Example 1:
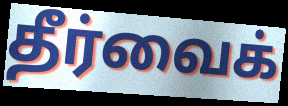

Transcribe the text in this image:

தீர்வைக்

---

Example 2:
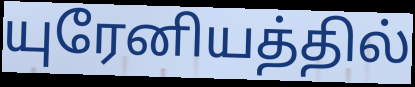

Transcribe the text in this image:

யுரேனியத்தில்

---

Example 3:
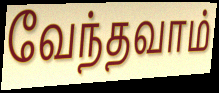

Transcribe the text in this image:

வேந்தவாம்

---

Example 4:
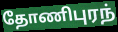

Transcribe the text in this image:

தோணிபுரந்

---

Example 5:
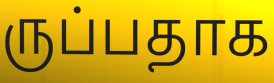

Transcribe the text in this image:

ருப்பதாக